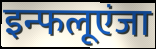
इन्फलूएंजा